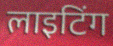
लाइटिंग